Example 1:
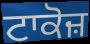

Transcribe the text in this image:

ਟਾਕੋਜ਼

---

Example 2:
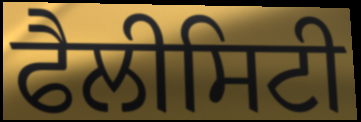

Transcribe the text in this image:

ਫੈਲੀਸਿਟੀ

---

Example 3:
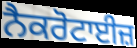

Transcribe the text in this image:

ਨੈਕਰੋਟਾਈਜ਼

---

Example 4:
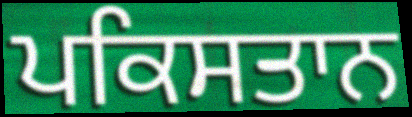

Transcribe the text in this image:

ਪਕਿਸਤਾਨ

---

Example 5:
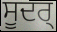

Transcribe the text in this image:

ਸੂਦਰ੍